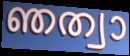
ഞത്വാ